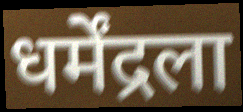
धर्मेंद्रला